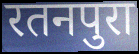
रतनपुरा